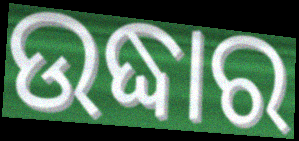
ଉଦ୍ଧାର